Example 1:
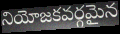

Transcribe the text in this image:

నియోజకవర్గమైన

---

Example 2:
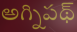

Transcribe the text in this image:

అగ్నిపథ్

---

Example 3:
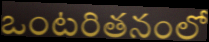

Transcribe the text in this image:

ఒంటరితనంలో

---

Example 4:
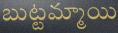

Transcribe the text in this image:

బుట్టమ్మాయి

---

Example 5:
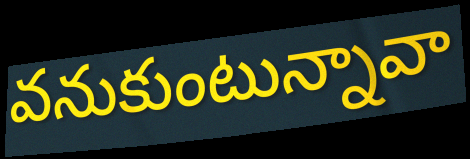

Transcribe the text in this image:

వనుకుంటున్నావా